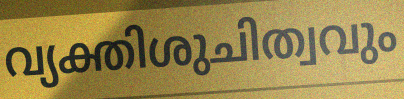
വ്യക്തിശുചിത്വവും